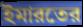
ইমারতের